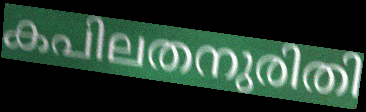
കപിലതനുരിതി